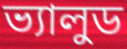
ভ্যালুড